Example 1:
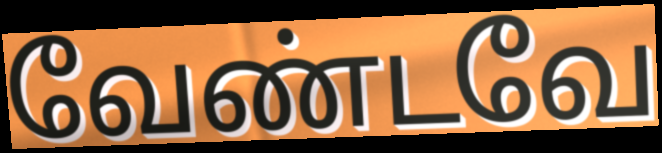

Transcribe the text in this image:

வேண்டவே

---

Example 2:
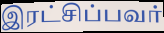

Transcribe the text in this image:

இரட்சிப்பவர்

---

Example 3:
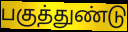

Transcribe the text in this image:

பகுத்துண்டு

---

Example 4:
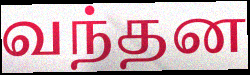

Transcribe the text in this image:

வந்தன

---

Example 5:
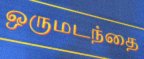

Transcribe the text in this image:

ஒருமடந்தை